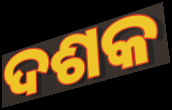
ଦଶକ